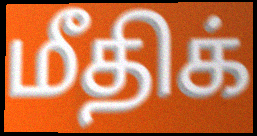
மீதிக்